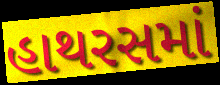
હાથરસમાં